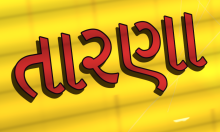
તારણા